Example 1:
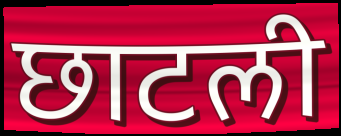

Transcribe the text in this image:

छाटली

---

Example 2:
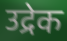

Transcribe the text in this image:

उद्रेक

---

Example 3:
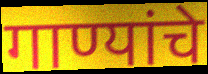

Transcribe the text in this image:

गाण्यांचे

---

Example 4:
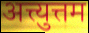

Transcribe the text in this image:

अत्त्युत्तम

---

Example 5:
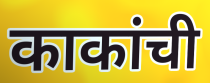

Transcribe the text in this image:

काकांची